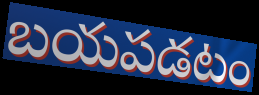
బయపడటం